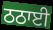
ਠਠਾਈ